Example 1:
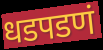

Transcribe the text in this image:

धडपडणं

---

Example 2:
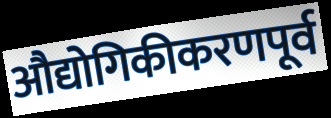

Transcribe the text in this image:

औद्योगिकीकरणपूर्व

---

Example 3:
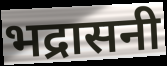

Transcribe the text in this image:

भद्रासनी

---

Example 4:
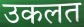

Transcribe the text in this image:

उकलत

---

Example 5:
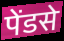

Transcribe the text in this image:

पेंडसे